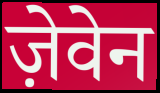
ज़ेवेन